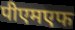
पीएमएफ